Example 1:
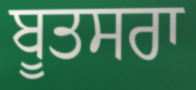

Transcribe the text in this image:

ਬੂਤਸਰਾ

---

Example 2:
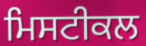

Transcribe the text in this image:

ਮਿਸਟੀਕਲ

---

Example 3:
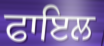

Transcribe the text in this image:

ਫਾਇਲ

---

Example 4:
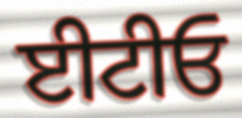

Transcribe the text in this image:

ਈਟੀਓ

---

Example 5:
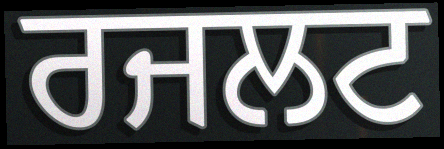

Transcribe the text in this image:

ਰਜਲਟ